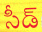
సీడ్